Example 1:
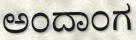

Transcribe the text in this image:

ಅಂದಾಂಗ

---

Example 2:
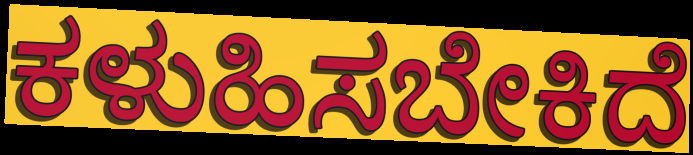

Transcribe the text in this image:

ಕಳುಹಿಸಬೇಕಿದೆ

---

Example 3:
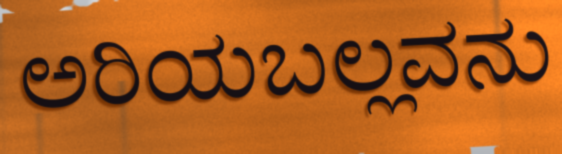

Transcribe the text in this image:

ಅರಿಯಬಲ್ಲವನು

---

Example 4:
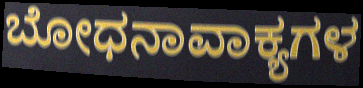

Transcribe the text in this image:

ಬೋಧನಾವಾಕ್ಯಗಳ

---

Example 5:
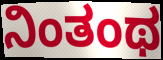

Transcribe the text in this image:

ನಿಂತಂಥ